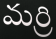
మర్రి